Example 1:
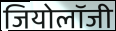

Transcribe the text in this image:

जियोलॉजी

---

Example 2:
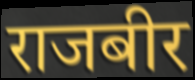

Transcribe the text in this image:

राजबीर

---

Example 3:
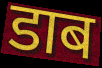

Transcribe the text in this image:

डाब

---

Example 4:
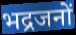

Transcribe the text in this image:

भद्रजनों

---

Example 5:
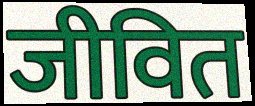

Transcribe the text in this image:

जीवित